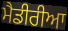
ਮੈਡੀਰੀਆ